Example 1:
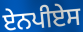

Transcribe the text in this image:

ਏਨਪੀਏਸ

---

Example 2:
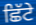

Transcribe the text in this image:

ਛਿੱਟੇ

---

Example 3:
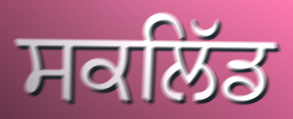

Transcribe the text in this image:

ਸਕਲਿੱਡ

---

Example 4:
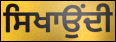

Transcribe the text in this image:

ਸਿਖਾਉਂਦੀ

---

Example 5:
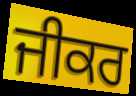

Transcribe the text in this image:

ਜੀਕਰ